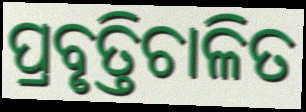
ପ୍ରବୃତ୍ତିଚାଳିତ